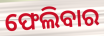
ଫେଲିବାର